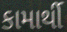
કામાર્થી